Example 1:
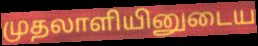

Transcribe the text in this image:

முதலாளியினுடைய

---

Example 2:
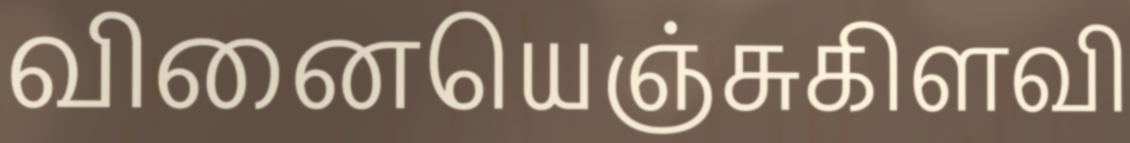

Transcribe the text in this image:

வினையெஞ்சுகிளவி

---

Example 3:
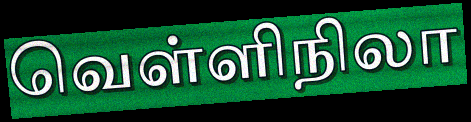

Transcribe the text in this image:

வெள்ளிநிலா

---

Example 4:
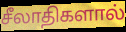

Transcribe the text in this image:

சீலாதிகளால்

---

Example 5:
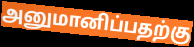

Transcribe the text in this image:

அனுமானிப்பதற்கு